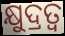
କ୍ଷୁଦ୍ରତ୍ୱ